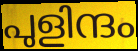
പുളിന്ദം